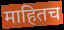
माहितच